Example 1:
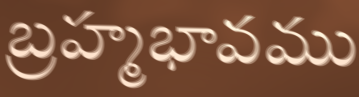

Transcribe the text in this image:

బ్రహ్మభావము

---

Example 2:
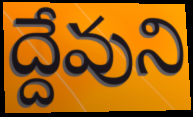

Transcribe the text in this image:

ద్దేవుని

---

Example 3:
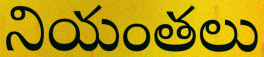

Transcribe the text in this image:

నియంతలు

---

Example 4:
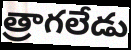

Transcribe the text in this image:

త్రాగలేడు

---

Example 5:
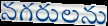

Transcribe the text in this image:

నగరులను